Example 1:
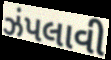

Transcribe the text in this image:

ઝંપલાવી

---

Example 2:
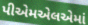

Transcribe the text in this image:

પીએમએલએમાં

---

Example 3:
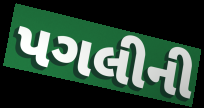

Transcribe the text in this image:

પગલીની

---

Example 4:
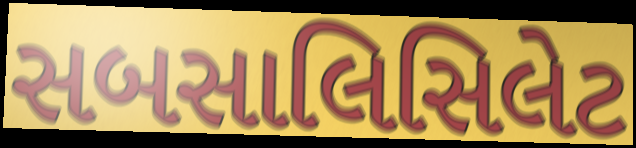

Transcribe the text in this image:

સબસાલિસિલેટ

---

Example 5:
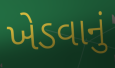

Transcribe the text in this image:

ખેડવાનું